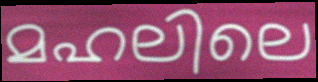
മഹലിലെ